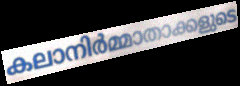
കലാനിർമ്മാതാക്കളുടെ